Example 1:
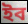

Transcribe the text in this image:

ইব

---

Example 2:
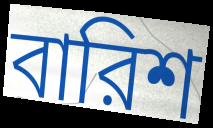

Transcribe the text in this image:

বারিশ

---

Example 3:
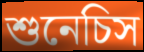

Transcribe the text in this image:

শুনেচিস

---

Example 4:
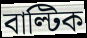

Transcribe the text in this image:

বাল্টিক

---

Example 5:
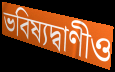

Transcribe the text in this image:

ভবিষ্যদ্বাণীও